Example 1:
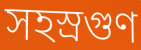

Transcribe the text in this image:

সহস্রগুণ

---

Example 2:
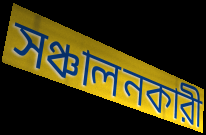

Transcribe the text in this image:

সঞ্চালনকারী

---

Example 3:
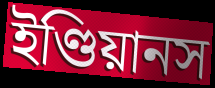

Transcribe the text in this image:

ইণ্ডিয়ানস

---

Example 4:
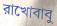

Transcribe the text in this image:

রাখোবাবু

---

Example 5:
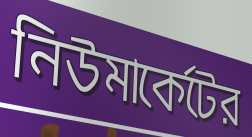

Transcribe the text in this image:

নিউমার্কেটের